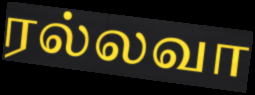
ரல்லவா